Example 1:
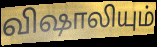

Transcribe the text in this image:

விஷாலியும்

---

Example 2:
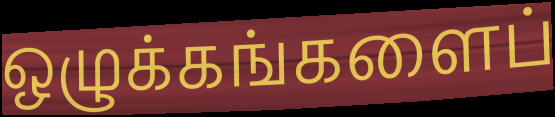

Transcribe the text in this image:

ஒழுக்கங்களைப்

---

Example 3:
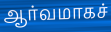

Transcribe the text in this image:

ஆர்வமாகச்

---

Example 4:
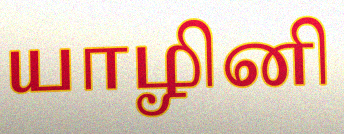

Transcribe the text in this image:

யாழினி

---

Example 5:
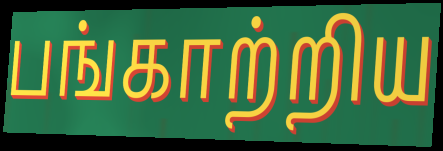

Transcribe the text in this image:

பங்காற்றிய